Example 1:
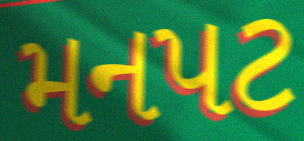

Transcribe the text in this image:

મનપટ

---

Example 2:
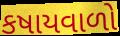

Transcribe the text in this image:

કષાયવાળો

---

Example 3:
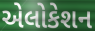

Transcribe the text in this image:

એલોકેશન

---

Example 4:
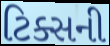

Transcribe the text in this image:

ટિક્સની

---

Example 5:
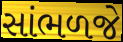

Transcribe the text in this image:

સાંભળજે